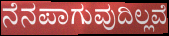
ನೆನಪಾಗುವುದಿಲ್ಲವೆ